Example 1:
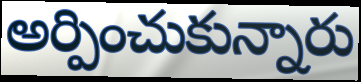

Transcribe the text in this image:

అర్పించుకున్నారు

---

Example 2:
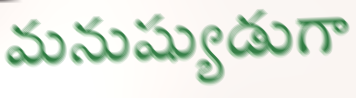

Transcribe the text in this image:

మనుష్యుడుగా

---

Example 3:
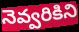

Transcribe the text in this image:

నెవ్వరికిని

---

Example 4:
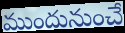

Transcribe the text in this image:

ముందునుంచే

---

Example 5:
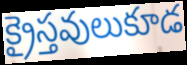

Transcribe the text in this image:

క్రైస్తవులుకూడ